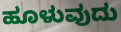
ಹೂಳುವುದು